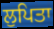
ਲੁਪਿਤਾ